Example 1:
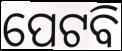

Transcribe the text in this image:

ପେଟବି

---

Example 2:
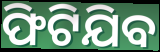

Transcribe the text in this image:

ଫିଟିଯିବ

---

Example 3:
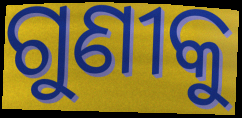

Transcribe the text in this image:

ଗୁଣୀକୁ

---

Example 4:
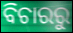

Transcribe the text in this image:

ବିଚାରରୁ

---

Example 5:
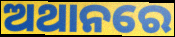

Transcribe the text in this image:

ଅଥାନରେ